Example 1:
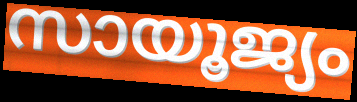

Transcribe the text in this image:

സായൂജ്യം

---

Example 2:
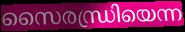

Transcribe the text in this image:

സൈരന്ധ്രിയെന്ന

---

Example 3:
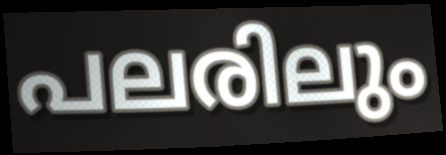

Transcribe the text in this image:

പലരിലും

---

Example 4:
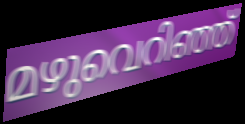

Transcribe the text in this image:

മഴുവെറിഞ്ഞ്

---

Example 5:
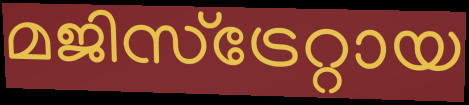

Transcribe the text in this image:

മജിസ്ട്രേറ്റായ